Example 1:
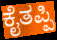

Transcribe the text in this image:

ಕೈತಪ್ಪಿ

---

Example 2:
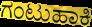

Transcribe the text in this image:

ಗಂಟುಹಾಕಿ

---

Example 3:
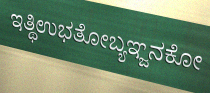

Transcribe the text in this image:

ಇತ್ಥಿಉಭತೋಬ್ಯಞ್ಜನಕೋ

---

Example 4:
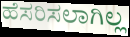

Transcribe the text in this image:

ಹೆಸರಿಸಲಾಗಿಲ್ಲ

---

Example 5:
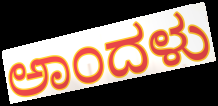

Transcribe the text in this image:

ಅಾಂದಳು